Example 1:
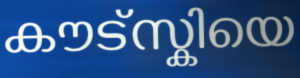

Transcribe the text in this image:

കൗട്സ്കിയെ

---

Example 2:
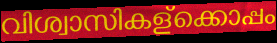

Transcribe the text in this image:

വിശ്വാസികള്ക്കൊപ്പം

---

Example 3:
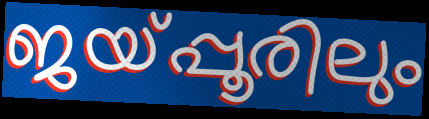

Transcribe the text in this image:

ജയ്പ്പൂരിലും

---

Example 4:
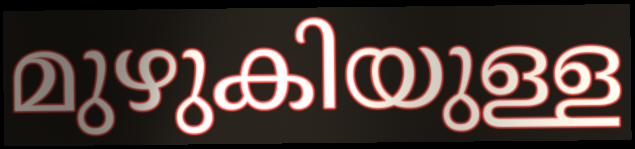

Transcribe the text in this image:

മുഴുകിയുള്ള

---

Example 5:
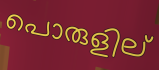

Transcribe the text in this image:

പൊരുളില്